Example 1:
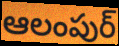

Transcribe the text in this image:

ఆలంపుర్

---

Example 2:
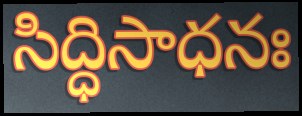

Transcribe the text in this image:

సిద్ధిసాధనః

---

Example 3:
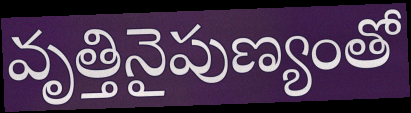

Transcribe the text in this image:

వృత్తినైపుణ్యంతో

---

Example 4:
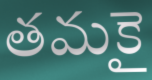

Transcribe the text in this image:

తమకై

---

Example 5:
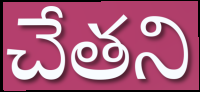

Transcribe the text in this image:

చేతని